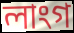
লাংগ